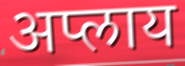
अप्लाय